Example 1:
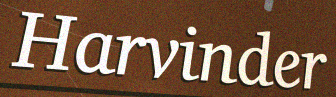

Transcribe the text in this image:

Harvinder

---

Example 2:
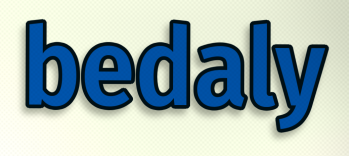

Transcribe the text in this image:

bedaly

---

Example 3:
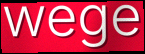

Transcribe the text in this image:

wege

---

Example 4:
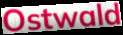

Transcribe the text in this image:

Ostwald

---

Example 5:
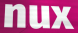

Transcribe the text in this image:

nux